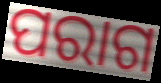
ପରାଗ